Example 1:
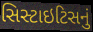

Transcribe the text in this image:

સિસ્ટાઇટિસનું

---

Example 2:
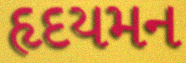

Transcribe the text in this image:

હૃદયમન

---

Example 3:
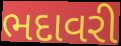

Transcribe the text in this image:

ભદાવરી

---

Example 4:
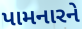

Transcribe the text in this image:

પામનારને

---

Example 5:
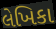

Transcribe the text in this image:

લેખિકા